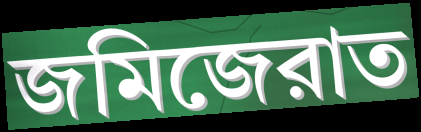
জমিজেরাত